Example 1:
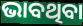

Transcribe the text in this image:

ଭାବଥିବା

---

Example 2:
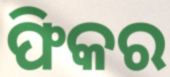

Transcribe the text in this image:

ଫିକର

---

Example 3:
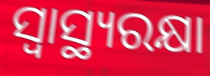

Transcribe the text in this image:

ସ୍ବାସ୍ଥ୍ୟରକ୍ଷା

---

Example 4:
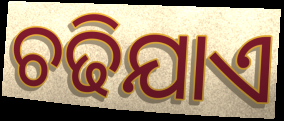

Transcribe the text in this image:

ଚଢିଯାଏ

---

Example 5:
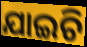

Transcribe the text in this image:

ଯାଇଚି